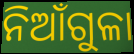
ନିଆଁଗୁଳା